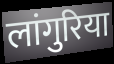
लांगुरिया